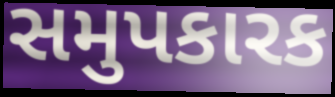
સમુપકારક